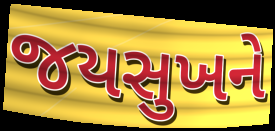
જયસુખને